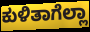
ಕುಳಿತಾಗೆಲ್ಲಾ